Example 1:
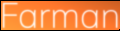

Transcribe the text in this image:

Farman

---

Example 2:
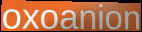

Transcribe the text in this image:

oxoanion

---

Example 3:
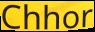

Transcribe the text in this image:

Chhor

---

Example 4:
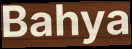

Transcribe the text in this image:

Bahya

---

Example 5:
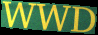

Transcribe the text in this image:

WWD